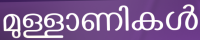
മുള്ളാണികൾ